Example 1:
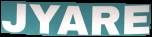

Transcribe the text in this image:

JYARE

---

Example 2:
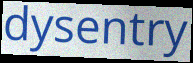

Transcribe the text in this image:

dysentry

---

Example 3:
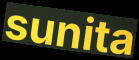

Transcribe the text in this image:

sunita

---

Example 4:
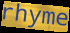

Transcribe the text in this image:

rhyme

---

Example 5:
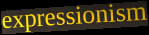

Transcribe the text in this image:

expressionism